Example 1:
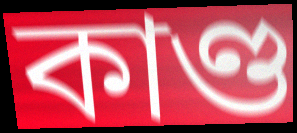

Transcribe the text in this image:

কাণ্ড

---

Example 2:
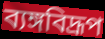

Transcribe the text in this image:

ব্যঙ্গবিদ্রূপ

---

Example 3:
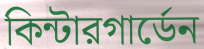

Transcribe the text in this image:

কিন্টারগার্ডেন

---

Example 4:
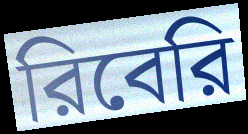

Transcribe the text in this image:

রিবেরি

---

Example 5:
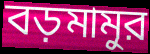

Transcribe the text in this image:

বড়মামুর